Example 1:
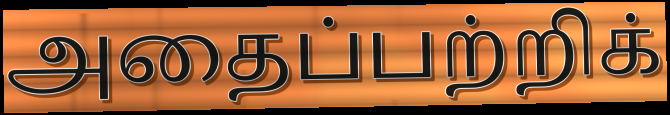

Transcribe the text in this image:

அதைப்பற்றிக்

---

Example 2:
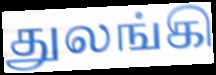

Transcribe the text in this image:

துலங்கி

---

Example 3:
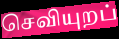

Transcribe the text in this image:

செவியுறப்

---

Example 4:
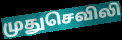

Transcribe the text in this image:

முதுசெவிலி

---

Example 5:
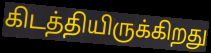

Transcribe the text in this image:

கிடத்தியிருக்கிறது